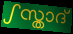
ഽസ്താദ്